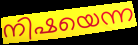
നിഷയെന്ന